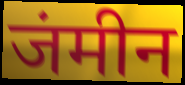
जंमीन